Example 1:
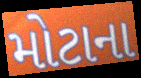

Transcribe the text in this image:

મોટાના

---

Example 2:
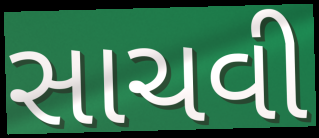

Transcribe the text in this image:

સાચવી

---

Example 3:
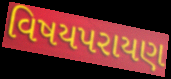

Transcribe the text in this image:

વિષયપરાયણ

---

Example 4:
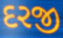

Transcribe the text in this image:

દરજી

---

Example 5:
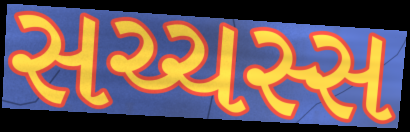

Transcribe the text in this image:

સચ્ચસ્સ